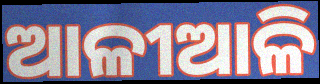
ଆଳୀଆଳି